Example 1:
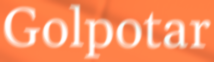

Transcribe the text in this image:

Golpotar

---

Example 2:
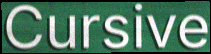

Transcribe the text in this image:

Cursive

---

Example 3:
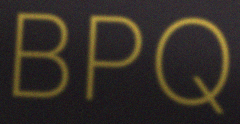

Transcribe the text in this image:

BPQ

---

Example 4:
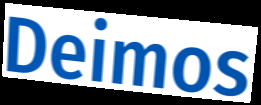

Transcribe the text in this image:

Deimos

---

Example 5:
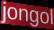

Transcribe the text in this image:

jongol